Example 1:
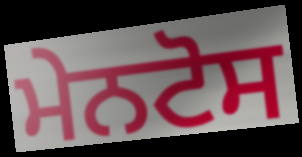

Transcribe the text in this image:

ਮੇਨਟੋਸ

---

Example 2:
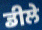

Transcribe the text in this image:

ਡੀਲੇ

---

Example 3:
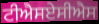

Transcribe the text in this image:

ਟੀਐਸਏਸੀਐਸ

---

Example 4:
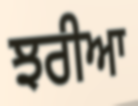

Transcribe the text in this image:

ਝਰੀਆ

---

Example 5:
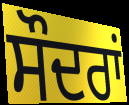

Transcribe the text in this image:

ਸੌਦਰਾਂ